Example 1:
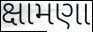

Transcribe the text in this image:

ક્ષામણા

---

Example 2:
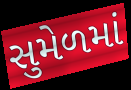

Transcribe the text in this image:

સુમેળમાં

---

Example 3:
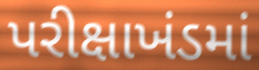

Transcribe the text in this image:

પરીક્ષાખંડમાં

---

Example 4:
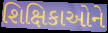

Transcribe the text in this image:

શિક્ષિકાઓને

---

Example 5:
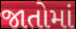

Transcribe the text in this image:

જાતોમાં